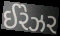
ઈરેઝર